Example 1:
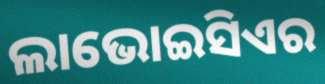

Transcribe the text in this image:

ଲାଭୋଇସିଏର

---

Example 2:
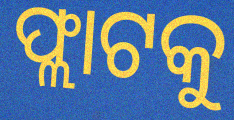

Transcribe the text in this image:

ଫ୍ଲାଟକୁ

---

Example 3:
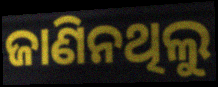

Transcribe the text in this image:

ଜାଣିନଥିଲୁ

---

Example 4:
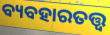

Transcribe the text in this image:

ବ୍ୟବହାରତତ୍ତ୍ବ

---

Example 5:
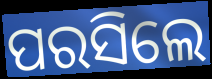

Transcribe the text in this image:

ପରସିଲେ